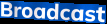
Broadcast